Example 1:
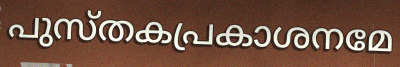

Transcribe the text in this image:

പുസ്തകപ്രകാശനമേ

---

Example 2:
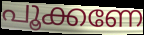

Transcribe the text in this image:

പൂക്കണേ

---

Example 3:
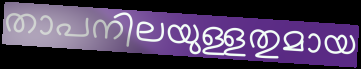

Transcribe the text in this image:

താപനിലയുള്ളതുമായ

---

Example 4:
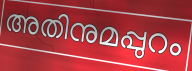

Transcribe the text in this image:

അതിനുമപ്പുറം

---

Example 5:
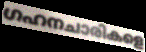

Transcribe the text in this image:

ഗഹനചാരികളെ